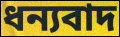
ধন্যবাদ